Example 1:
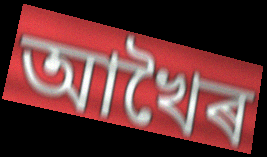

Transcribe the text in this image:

আখৈৰ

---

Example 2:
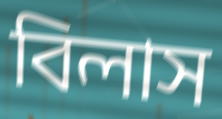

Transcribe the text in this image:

বিলাস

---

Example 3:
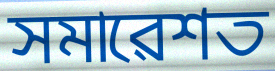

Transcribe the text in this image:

সমাৱেশত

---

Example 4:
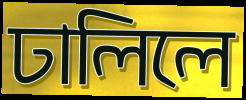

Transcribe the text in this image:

ঢালিলে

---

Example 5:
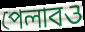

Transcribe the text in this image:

পেলাবও